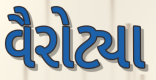
વૈરોટ્યા